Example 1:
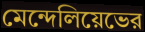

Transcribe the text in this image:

মেন্দেলিয়েভের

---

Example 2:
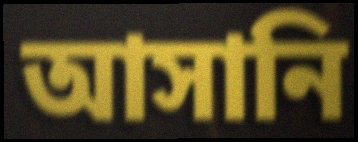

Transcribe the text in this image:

আসানি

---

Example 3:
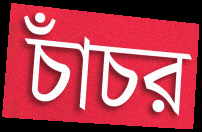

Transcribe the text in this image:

চাঁচর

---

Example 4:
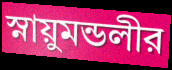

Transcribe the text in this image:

স্নায়ুমন্ডলীর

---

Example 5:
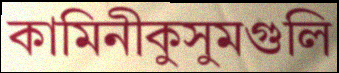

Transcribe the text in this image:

কামিনীকুসুমগুলি